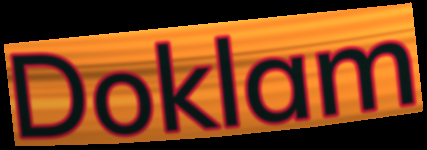
Doklam